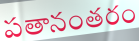
పతానంతరం